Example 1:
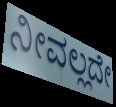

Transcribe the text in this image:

ನೀವಲ್ಲದೇ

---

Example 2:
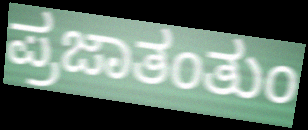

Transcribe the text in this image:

ಪ್ರಜಾತಂತುಂ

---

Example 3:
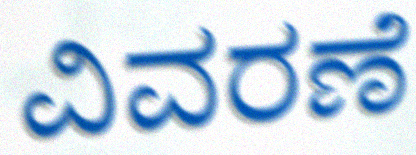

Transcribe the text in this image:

ವಿವರಣೆ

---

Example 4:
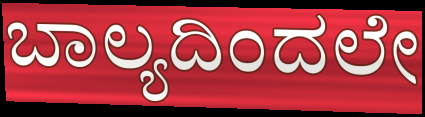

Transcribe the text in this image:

ಬಾಲ್ಯದಿಂದಲೇ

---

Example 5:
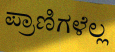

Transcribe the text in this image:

ಪ್ರಾಣಿಗಳೆಲ್ಲ